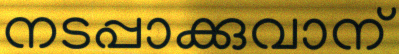
നടപ്പാക്കുവാന്